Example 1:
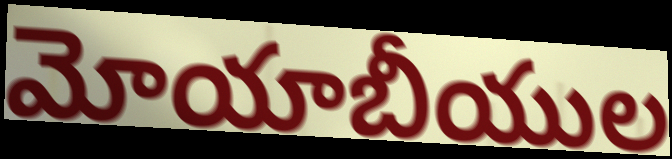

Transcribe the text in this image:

మోయాబీయుల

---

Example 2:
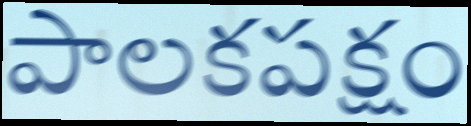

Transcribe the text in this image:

పాలకపక్షం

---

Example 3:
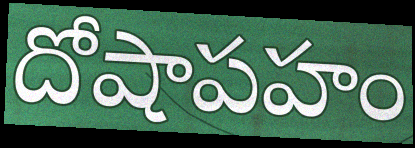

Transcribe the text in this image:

దోషాపహం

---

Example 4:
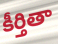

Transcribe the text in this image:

కీర్తితా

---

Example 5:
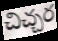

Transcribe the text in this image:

చిచ్చర